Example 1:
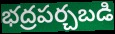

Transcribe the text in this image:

భద్రపర్చబడి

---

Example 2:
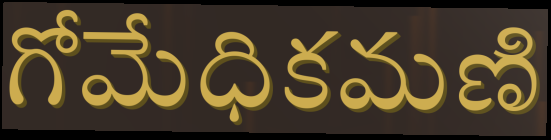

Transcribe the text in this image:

గోమేధికమణి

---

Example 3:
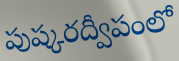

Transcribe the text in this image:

పుష్కరద్వీపంలో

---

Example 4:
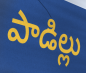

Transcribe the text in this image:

పాడిల్లు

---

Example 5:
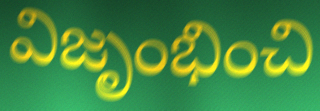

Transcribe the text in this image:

విజృంభించి